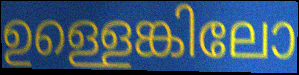
ഉള്ളെങ്കിലോ